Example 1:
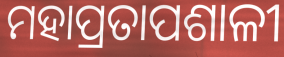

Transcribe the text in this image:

ମହାପ୍ରତାପଶାଳୀ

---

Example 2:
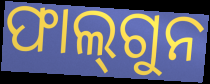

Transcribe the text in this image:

ଫାଲ୍‍ଗୁନ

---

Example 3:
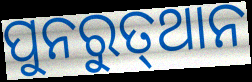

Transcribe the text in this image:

ପୁନରୁତ୍‌ଥାନ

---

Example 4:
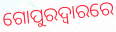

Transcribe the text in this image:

ଗୋପୁରଦ୍ବାରରେ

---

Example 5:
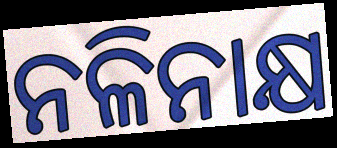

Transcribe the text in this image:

ନଳିନାକ୍ଷ